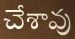
చేశావు